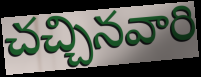
చచ్చినవారి